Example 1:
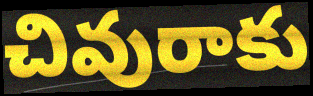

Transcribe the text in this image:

చివురాకు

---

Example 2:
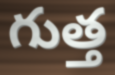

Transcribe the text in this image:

గుత్త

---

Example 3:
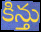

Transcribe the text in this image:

కిన్తు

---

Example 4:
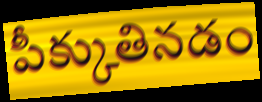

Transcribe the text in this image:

పీక్కుతినడం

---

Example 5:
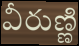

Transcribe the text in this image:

వీరుణ్ణి